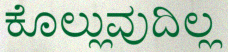
ಕೊಲ್ಲುವುದಿಲ್ಲ